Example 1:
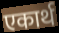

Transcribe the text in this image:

एकार्थ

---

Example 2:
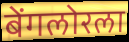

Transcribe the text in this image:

बेंगलोरला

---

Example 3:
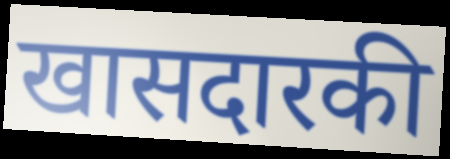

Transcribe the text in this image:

खासदारकी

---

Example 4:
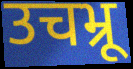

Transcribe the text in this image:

उचभ्रू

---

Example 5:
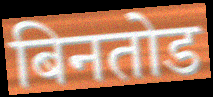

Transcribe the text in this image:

बिनतोड